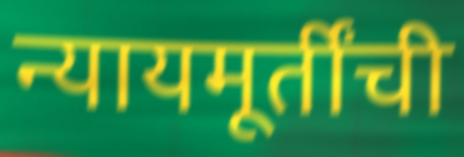
न्यायमूर्तींची